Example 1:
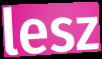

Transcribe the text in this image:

lesz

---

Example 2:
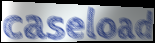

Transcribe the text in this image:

caseload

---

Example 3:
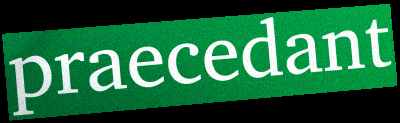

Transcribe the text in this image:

praecedant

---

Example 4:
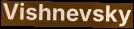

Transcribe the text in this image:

Vishnevsky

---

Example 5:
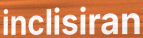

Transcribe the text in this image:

inclisiran